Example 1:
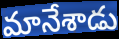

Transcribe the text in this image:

మానేశాడు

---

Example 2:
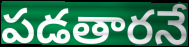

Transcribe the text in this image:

పడతారనే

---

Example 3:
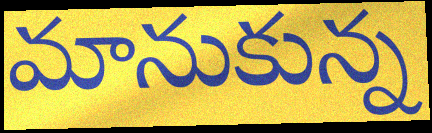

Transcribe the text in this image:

మానుకున్న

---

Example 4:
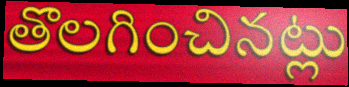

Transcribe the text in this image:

తొలగించినట్లు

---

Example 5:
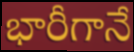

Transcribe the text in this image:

భారీగానే